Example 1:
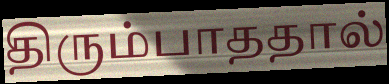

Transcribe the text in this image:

திரும்பாததால்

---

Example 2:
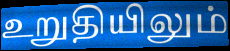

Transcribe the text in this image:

உறுதியிலும்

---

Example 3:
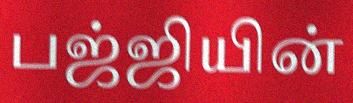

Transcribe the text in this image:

பஜ்ஜியின்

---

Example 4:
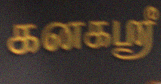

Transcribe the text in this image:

கனகஸ்ரீ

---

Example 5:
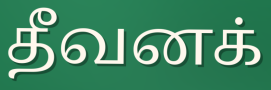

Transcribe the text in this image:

தீவனக்